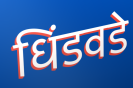
धिंडवडे